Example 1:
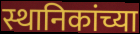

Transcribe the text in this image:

स्थानिकांच्या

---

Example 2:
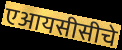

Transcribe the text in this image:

एआयसीसीचे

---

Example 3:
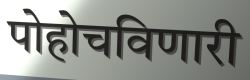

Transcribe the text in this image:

पोहोचविणारी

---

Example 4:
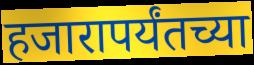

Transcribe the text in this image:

हजारापर्यंतच्या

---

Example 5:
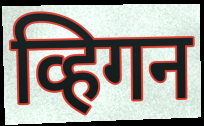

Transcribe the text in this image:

व्हिगन